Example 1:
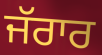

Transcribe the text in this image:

ਜੱਰਾਰ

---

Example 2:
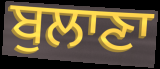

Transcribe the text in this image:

ਬੁਲਾਣਾ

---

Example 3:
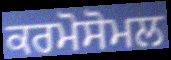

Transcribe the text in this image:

ਕਰਮੋਸੋਮਲ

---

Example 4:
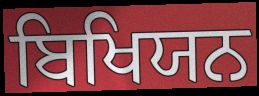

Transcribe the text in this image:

ਬਿਖਿਯਨ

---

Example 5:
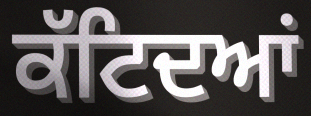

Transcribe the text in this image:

ਕੱਟਿਦਆਂ